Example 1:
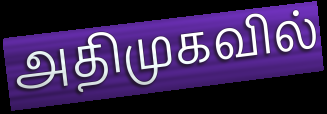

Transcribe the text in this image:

அதிமுகவில்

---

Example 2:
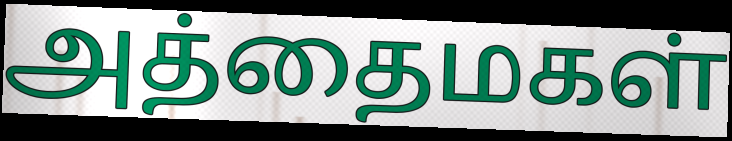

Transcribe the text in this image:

அத்தைமகள்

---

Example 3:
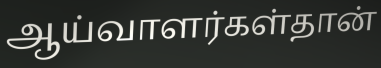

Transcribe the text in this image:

ஆய்வாளர்கள்தான்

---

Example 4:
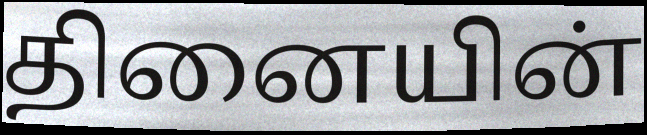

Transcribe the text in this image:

தினையின்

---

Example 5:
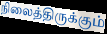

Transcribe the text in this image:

நிலைத்திருக்கும்